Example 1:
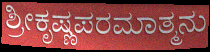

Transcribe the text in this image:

ಶ್ರೀಕೃಷ್ಣಪರಮಾತ್ಮನು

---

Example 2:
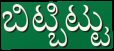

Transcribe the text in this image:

ಬಿಟ್ಬಿಟ್ಟು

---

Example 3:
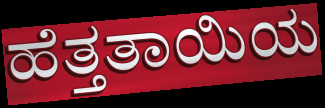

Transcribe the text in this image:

ಹೆತ್ತತಾಯಿಯ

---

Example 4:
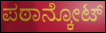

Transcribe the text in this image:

ಪಠಾನ್ಕೋಟ್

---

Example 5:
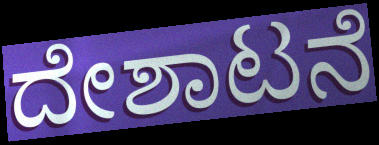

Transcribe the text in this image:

ದೇಶಾಟನೆ